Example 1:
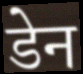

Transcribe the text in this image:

डेन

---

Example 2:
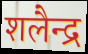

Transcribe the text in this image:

शलैन्द्र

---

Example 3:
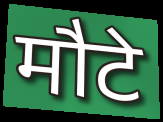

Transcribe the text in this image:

मौटे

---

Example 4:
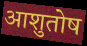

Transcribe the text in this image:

आशुतोष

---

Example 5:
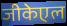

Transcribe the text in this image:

जीकेएल